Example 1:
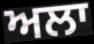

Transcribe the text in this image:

ਅਲਾ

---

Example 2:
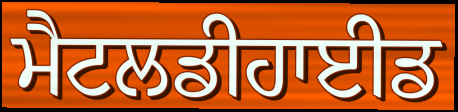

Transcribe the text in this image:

ਮੈਟਲਡੀਹਾਈਡ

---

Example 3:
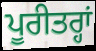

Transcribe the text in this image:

ਪੂਰੀਤਰ੍ਹਾਂ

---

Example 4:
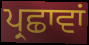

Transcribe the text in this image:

ਪ੍ਰਛਾਵਾਂ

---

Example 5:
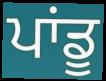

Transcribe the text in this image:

ਪਾਂਡੂ